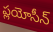
ప్లయోసీన్